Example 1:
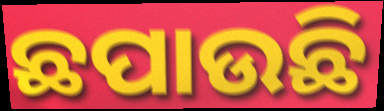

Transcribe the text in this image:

ଛପାଉଛି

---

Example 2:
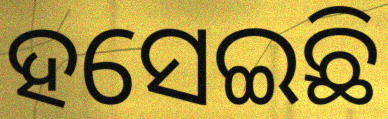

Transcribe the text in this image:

ହସେଇଛି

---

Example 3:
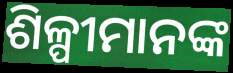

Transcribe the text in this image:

ଶିଳ୍ପୀମାନଙ୍କ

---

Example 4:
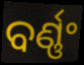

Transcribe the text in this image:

ବର୍ଣ୍ଣଂ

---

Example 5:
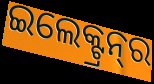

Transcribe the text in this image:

ଇଲେକ୍ଟ୍ରନ୍‌ର